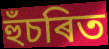
হুঁচৰিত